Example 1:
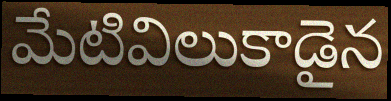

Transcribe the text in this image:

మేటివిలుకాడైన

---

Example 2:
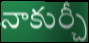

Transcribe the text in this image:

నాకుర్చీ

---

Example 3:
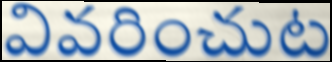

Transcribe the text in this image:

వివరించుట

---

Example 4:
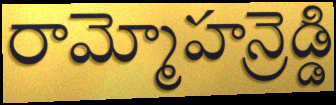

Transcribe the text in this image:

రామ్మోహన్రెడ్డి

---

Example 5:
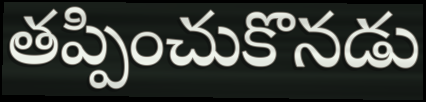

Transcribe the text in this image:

తప్పించుకొనడు